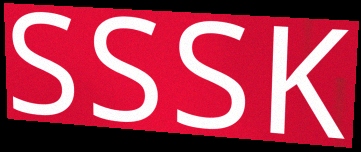
SSSK